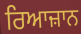
ਰਿਆਜ਼ਾਨ